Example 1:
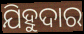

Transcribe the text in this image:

ଯିହୁଦାର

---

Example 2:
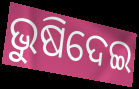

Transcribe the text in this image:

ଭୁଷିଦେଇ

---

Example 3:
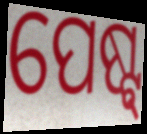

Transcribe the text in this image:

ପେଷ୍ଟ୍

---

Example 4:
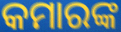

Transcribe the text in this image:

କମାରଙ୍କ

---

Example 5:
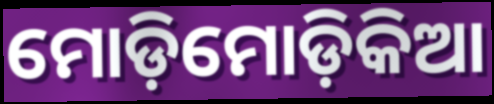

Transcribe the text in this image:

ମୋଡ଼ିମୋଡ଼ିକିଆ